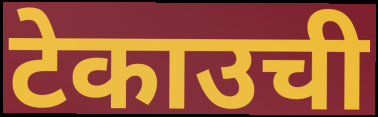
टेकाउची